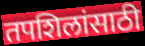
तपशिलांसाठी